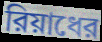
রিয়াধের